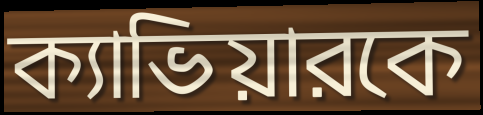
ক্যাভিয়ারকে